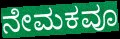
ನೇಮಕವೂ